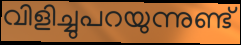
വിളിച്ചുപറയുന്നുണ്ട്